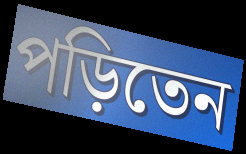
পড়িতেন